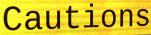
Cautions